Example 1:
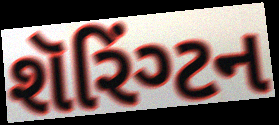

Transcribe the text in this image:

શૅરિંગ્ટન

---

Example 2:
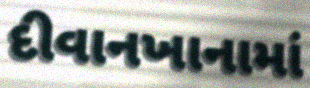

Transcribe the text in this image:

દીવાનખાનામાં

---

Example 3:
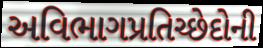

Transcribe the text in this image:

અવિભાગપ્રતિચ્છેદોની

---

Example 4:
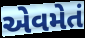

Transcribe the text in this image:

એવમેતં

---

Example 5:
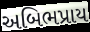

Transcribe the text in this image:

અબિભપ્રાય